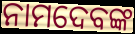
ନାମଦେବଙ୍କ